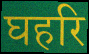
घहरि